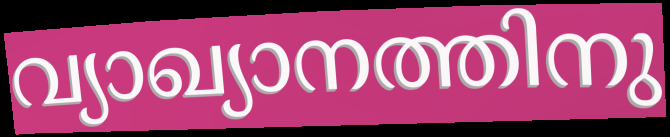
വ്യാഖ്യാനത്തിനു